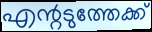
എന്റടുത്തേക്ക്